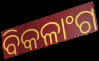
ବିକଳାଂଗ